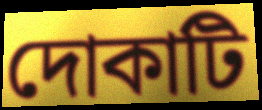
দোকাটি